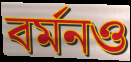
বর্মনও